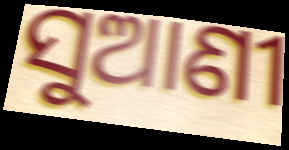
ସୁଆଣୀ